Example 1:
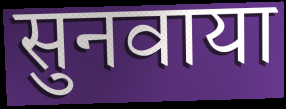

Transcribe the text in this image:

सुनवाया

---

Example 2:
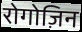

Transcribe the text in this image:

रोगोज़िन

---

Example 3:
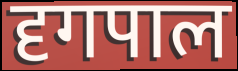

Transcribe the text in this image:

दृगपाल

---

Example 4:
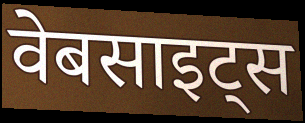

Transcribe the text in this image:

वेबसाइट्स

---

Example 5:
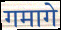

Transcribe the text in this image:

गमागे